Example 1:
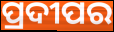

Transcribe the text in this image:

ପ୍ରଦୀପର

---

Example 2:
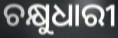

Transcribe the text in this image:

ଚକ୍ଷୁଧାରୀ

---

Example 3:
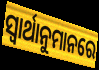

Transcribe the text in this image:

ସ୍ୱାର୍ଥାନୁମାନରେ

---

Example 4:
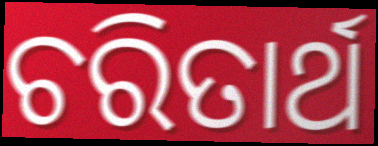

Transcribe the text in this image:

ଚରିତାର୍ଥ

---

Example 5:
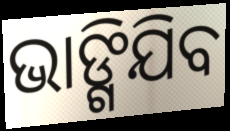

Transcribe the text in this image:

ଭାଙ୍ଗିଯିବ